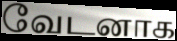
வேடனாக